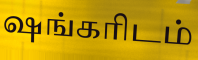
ஷங்கரிடம்